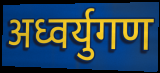
अध्वर्युगण